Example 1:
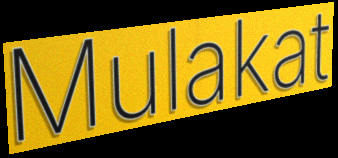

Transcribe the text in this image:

Mulakat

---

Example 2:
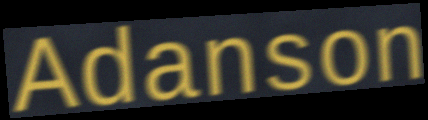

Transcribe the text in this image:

Adanson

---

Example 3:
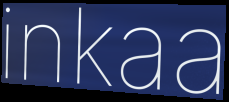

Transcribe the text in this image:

inkaa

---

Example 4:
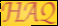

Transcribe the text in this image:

HAQ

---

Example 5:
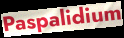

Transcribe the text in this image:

Paspalidium